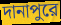
দানাপুরে